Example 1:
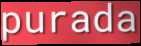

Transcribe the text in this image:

purada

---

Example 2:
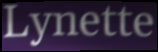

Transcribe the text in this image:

Lynette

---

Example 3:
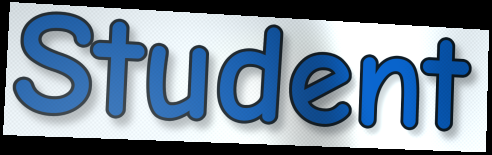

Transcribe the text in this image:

Student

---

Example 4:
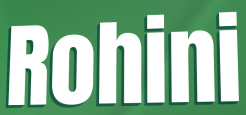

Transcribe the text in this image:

Rohini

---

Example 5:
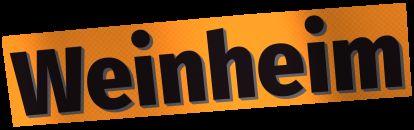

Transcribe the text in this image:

Weinheim